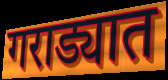
गराड्यात